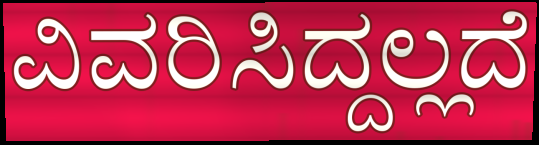
ವಿವರಿಸಿದ್ದಲ್ಲದೆ